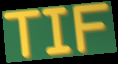
TIF